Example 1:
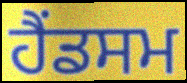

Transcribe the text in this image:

ਹੈਂਡਸਮ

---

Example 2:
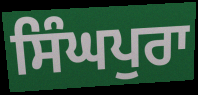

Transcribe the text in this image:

ਸਿੰਘਪੁਰਾ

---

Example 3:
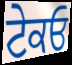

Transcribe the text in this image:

ਟੇਕਓ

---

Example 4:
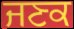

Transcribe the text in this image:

ਜਣਕ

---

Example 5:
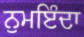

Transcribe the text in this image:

ਨੁਮਇੰਦਾ